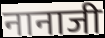
नानाजी